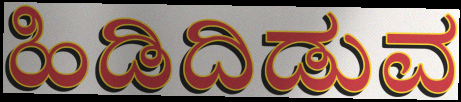
ಹಿಡಿದಿಡುವ